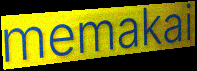
memakai